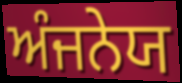
ਅੰਜਨੇਯ